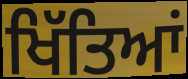
ਖਿੱਤਿਆਂ